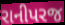
રાનીપરજ